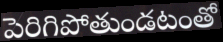
పెరిగిపోతుండటంతో